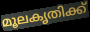
മൂലകൃതിക്ക്